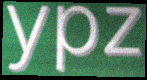
ypz